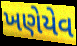
ખણેયેવ